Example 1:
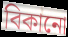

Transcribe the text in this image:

বিকানো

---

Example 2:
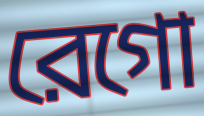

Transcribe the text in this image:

রেগো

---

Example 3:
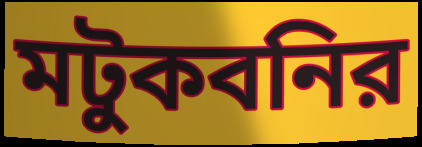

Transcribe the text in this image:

মটুকবনির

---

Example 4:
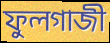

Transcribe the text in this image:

ফুলগাজী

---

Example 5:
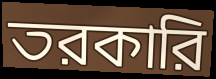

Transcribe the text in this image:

তরকারি